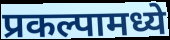
प्रकल्पामध्ये